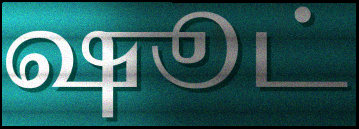
ஷூட்